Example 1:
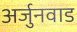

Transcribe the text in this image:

अर्जुनवाड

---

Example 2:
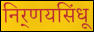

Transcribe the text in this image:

निर्णयसिंधू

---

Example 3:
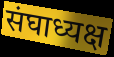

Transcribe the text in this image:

संघाध्यक्ष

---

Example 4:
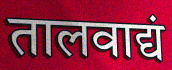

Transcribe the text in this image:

तालवाद्यं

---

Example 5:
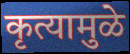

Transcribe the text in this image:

कृत्यामुळे